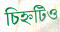
চিহ্নটিও